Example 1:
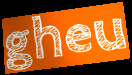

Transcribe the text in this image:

gheu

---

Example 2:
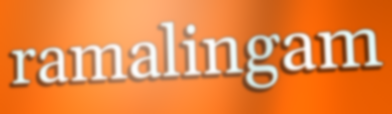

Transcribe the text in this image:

ramalingam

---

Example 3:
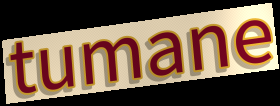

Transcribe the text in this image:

tumane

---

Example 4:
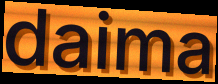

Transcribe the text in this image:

daima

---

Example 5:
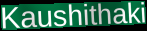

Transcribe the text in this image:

Kaushithaki